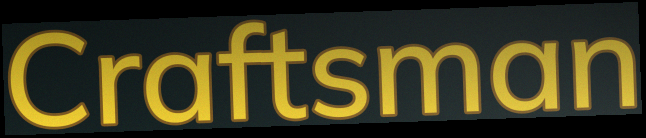
Craftsman